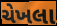
ચેખલા